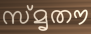
സ്മൃതൗ